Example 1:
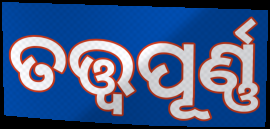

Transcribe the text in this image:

ତତ୍ତ୍ୱପୂର୍ଣ୍ଣ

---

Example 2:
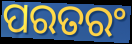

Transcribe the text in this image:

ପରତରଂ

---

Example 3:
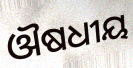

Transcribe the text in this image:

ଔଷଧୀୟ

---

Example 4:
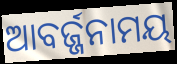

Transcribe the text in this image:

ଆବର୍ଜ୍ଜନାମୟ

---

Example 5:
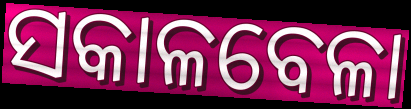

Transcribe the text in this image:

ସକାଳବେଳା